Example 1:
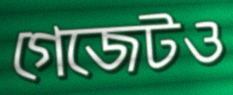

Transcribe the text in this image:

গেজেটও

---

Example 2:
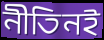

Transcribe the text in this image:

নীতিনই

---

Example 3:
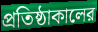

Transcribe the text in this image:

প্রতিষ্ঠাকালের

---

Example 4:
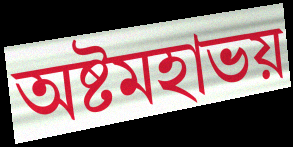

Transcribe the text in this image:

অষ্টমহাভয়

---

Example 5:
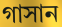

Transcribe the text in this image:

গাসান